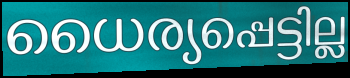
ധൈര്യപ്പെട്ടില്ല